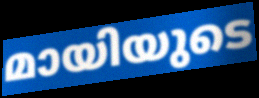
മായിയുടെ